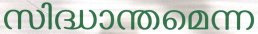
സിദ്ധാന്തമെന്ന